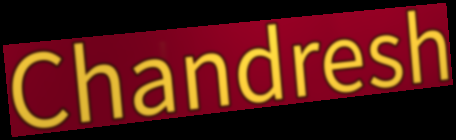
Chandresh